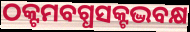
ଠକ୍ଟମବଗ୍ଧସକ୍ଟଦ୍ଭବକ୍ଷ